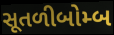
સૂતળીબોમ્બ